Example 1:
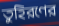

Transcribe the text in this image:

তুহিরণের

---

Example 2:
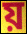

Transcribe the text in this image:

য়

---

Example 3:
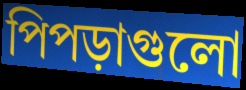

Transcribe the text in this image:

পিপড়াগুলো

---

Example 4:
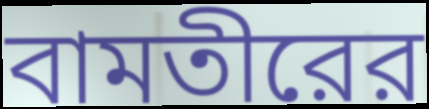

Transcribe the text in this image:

বামতীরের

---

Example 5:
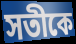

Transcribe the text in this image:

সতীকে